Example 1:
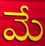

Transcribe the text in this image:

మే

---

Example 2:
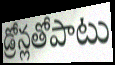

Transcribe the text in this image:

డ్రోన్లతోపాటు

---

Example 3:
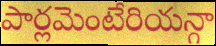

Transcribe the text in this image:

పార్లమెంటేరియన్గా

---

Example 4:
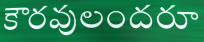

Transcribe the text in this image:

కౌరవులందరూ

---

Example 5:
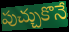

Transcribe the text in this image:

పుచ్చుకొనే